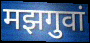
मझगुवां